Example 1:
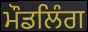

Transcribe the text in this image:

ਮੌਡਲਿੰਗ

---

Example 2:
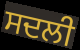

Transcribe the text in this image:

ਸਦਲੀ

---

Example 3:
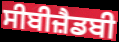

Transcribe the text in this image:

ਸੀਬੀਜ਼ੈਡਬੀ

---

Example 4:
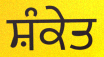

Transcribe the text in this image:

ਸ਼ੰਕੇਤ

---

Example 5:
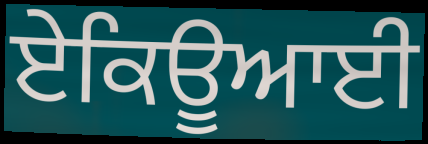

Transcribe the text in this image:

ਏਕਿਊਆਈ